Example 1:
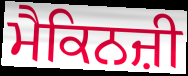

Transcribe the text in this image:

ਮੈਕਿਨਜ਼ੀ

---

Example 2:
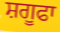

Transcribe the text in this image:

ਸ਼ਗੂਫਾ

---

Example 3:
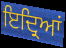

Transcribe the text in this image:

ਇਦ੍ਰਿਆਂ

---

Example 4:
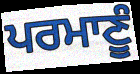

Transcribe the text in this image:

ਪਰਮਾਣੂੰ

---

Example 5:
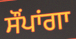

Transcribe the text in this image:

ਸੌਂਪਾਂਗਾ